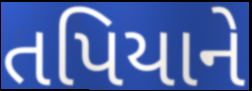
તપિયાને